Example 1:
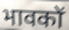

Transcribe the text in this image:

भावकों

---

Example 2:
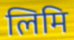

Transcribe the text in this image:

लिमि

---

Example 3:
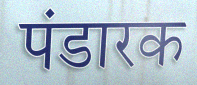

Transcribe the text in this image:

पंडारक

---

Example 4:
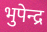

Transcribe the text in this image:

भुपेन्द्र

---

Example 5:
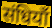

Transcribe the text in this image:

संधियाँ